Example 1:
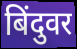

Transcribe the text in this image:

बिंदुवर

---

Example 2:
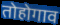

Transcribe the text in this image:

तोहोगाव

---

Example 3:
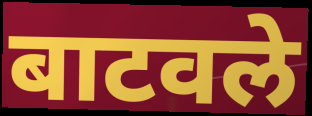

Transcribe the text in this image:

बाटवले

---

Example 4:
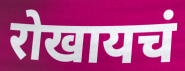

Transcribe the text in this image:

रोखायचं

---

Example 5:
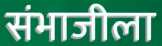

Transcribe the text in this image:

संभाजीला